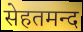
सेहतमन्द